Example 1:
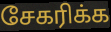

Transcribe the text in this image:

சேகரிக்க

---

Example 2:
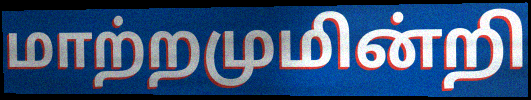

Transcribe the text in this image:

மாற்றமுமின்றி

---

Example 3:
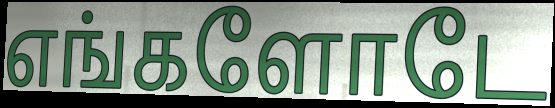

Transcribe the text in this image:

எங்களோடே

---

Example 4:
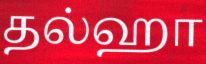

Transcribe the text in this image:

தல்ஹா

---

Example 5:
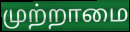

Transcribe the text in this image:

முற்றாமை